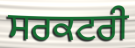
ਸਰਕਟਰੀ